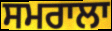
ਸਮਰਾਲਾ